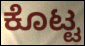
ಕೊಟ್ಟ